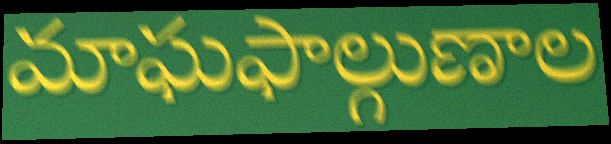
మాఘఫాల్గుణాల